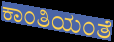
ಕಾಂತಿಯಂತೆ